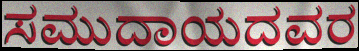
ಸಮುದಾಯದವರ